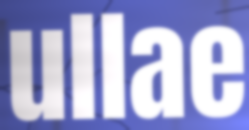
ullae